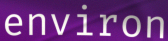
environ